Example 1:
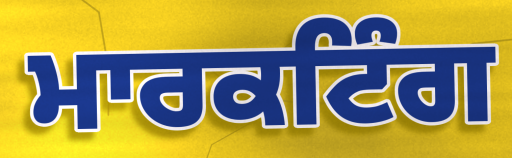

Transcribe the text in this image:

ਮਾਰਕਟਿੰਗ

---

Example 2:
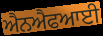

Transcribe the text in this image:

ਐਨਐਫਆਈ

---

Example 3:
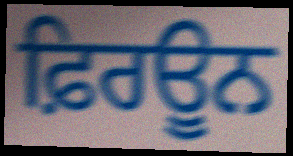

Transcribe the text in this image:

ਫ਼ਿਰਊਨ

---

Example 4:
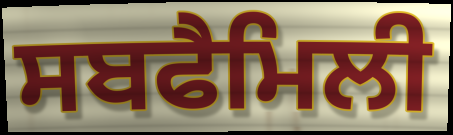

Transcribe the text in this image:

ਸਬਫੈਮਿਲੀ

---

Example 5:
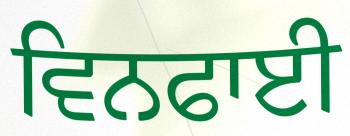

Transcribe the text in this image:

ਵਿਨਫਾਈ